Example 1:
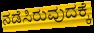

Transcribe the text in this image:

ನಡೆಸಿರುವುದಕ್ಕೆ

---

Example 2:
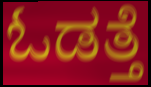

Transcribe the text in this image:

ಓಡತ್ತೆ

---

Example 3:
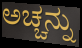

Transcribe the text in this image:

ಅಚ್ಚನ್ನು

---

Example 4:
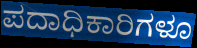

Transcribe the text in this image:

ಪದಾಧಿಕಾರಿಗಳೂ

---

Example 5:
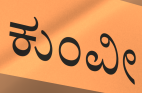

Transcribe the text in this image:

ಕುಂವೀ